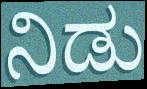
ನಿಡು